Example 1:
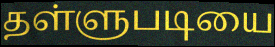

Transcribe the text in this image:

தள்ளுபடியை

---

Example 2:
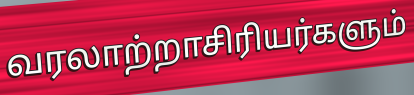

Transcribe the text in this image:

வரலாற்றாசிரியர்களும்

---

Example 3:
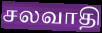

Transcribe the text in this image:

சலவாதி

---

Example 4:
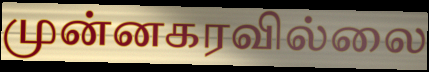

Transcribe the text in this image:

முன்னகரவில்லை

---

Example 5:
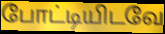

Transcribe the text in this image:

போட்டியிடவே